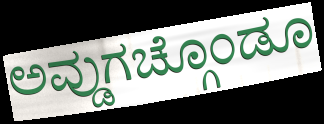
ಅವ್ಡುಗಚ್ಗೊಂಡೂ